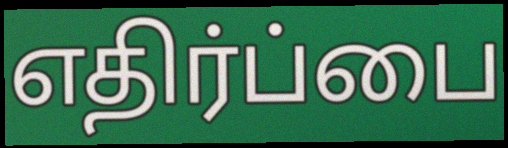
எதிர்ப்பை